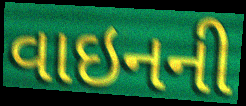
વાઇનની